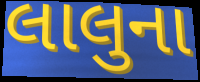
લાલુના